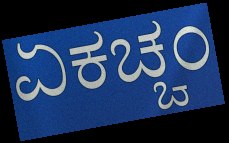
ಏಕಚ್ಚಂ